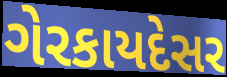
ગેરકાયદેસર